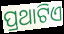
ପ୍ରଥାଟିଏ